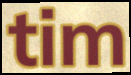
tim